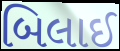
બિલાઈ